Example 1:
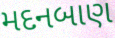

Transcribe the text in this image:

મદનબાણ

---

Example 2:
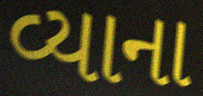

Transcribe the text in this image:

વ્યાના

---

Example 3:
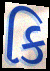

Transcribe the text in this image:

કિ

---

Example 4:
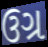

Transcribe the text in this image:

ઉગ્ર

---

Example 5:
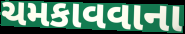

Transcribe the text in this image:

ચમકાવવાના